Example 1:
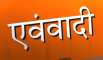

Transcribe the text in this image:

एवंवादी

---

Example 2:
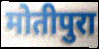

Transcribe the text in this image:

मोतीपुरा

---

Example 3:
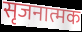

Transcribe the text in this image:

सृजनात्मक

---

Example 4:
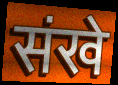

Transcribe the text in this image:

संखे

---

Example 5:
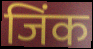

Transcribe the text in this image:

जिंक